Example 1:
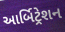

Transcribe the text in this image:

આર્બિટ્રેશન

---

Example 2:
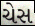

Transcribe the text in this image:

ચેસ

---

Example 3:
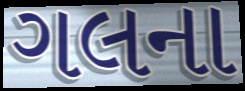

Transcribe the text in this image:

ગલના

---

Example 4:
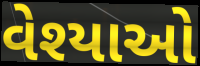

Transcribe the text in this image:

વેશ્યાઓ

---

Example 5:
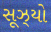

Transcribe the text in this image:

સૂઝ્યો